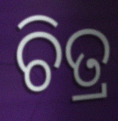
ଚିତ୍ର